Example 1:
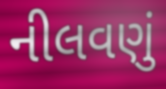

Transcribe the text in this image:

નીલવણું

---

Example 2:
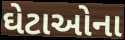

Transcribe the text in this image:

ઘેટાઓના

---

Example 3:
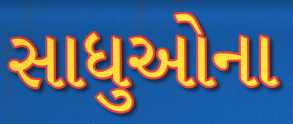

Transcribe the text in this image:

સાધુઓના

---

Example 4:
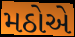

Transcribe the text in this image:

મઠોએ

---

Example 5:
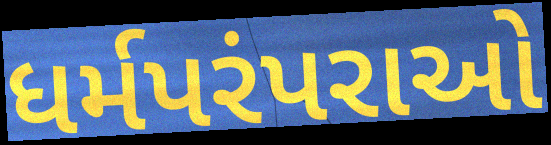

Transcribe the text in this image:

ધર્મપરંપરાઓ